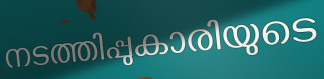
നടത്തിപ്പുകാരിയുടെ